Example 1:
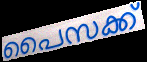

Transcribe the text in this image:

പൈസക്ക്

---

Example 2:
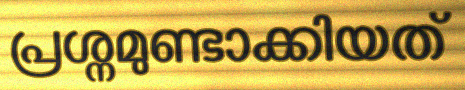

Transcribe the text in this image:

പ്രശ്നമുണ്ടാക്കിയത്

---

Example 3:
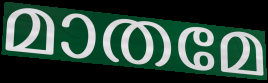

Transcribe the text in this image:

മാതമേ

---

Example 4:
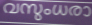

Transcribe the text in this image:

വസുംധരാ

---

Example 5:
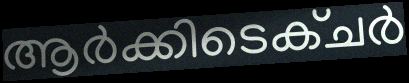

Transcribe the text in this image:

ആർക്കിടെക്ചർ